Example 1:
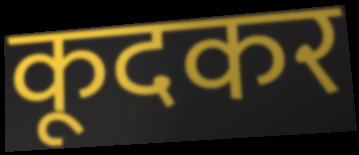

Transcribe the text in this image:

कूदकर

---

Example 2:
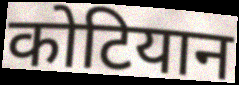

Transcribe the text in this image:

कोटियान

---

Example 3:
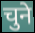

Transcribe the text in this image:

चुने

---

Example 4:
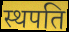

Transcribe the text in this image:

स्थपति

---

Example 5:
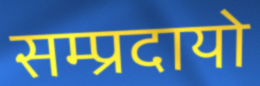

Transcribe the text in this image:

सम्प्रदायो